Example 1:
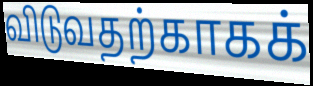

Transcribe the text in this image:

விடுவதற்காகக்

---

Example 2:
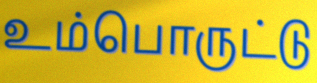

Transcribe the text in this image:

உம்பொருட்டு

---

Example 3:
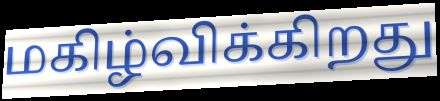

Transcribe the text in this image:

மகிழ்விக்கிறது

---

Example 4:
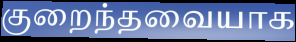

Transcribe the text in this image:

குறைந்தவையாக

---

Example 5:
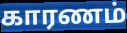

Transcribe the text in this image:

காரணம்